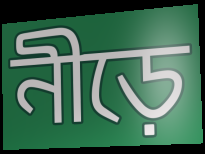
নীড়ে